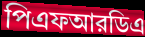
পিএফআরডিএ